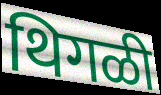
थिगळी